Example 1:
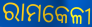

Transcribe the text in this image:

ରାମକେଳୀ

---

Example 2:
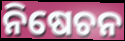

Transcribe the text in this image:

ନିଷେଚନ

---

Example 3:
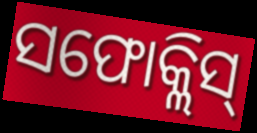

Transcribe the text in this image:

ସଫୋକ୍ଲିସ୍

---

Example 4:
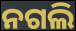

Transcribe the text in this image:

ନଗଲି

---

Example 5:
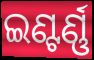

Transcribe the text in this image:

ଇଣ୍ଟର୍ଣ୍ଣ